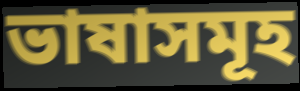
ভাষাসমূহ